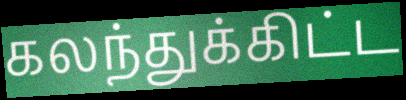
கலந்துக்கிட்ட